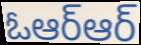
ఓఆర్ఆర్